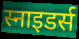
स्नाइडर्स